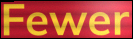
Fewer